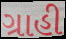
ગ્રાહી